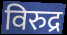
विरुद्र